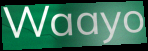
Waayo